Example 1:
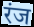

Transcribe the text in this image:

रंज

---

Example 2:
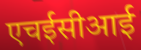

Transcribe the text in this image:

एचईसीआई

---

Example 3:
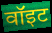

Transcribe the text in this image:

वॉइट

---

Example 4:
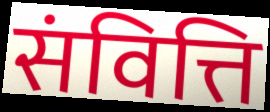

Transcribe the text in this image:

संवित्ति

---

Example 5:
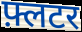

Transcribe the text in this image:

फ़्लटर